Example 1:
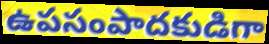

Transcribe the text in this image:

ఉపసంపాదకుడిగా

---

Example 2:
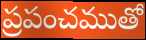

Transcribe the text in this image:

ప్రపంచముతో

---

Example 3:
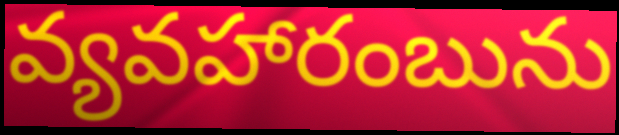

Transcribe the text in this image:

వ్యవహారంబును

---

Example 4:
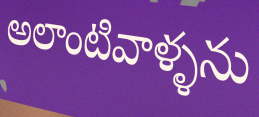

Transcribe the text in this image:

అలాంటివాళ్ళను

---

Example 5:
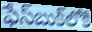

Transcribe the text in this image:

ఫేస్‌బుక్‌లోకి